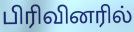
பிரிவினரில்